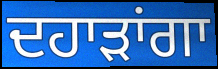
ਦਹਾੜਾਂਗਾ